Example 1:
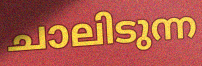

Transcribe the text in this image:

ചാലിടുന്ന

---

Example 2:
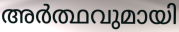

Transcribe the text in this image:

അർത്ഥവുമായി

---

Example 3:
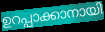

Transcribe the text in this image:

ഉറപ്പാക്കാനായി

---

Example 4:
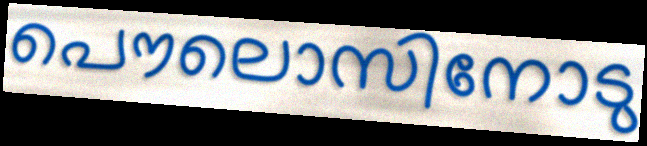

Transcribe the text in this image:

പൌലൊസിനോടു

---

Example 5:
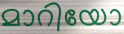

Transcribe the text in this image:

മാറിയോ